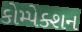
કોમ્પેક્શન